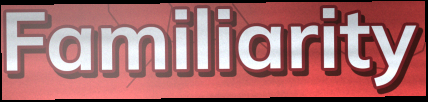
Familiarity